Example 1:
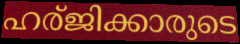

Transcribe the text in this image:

ഹര്ജിക്കാരുടെ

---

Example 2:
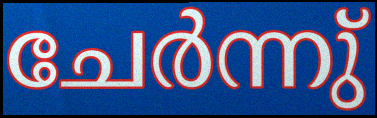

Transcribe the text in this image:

ചേർന്നു്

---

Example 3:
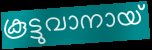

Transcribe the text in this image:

കൂട്ടുവാനായ്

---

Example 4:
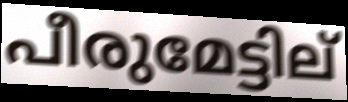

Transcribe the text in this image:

പീരുമേട്ടില്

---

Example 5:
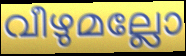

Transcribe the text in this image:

വീഴുമല്ലോ